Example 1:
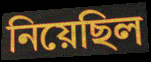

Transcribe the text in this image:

নিয়েছিল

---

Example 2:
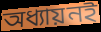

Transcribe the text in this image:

অধ্যায়নই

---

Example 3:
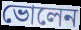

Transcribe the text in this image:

ভোলেন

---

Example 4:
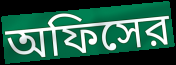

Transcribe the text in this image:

অফিসের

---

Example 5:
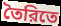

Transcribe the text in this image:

তৈরিতে